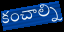
కంచాల్ని